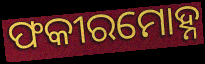
ଫକୀରମୋହ୍ନ